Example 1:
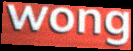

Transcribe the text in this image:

wong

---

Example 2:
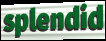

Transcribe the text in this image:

splendid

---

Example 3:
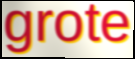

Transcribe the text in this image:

grote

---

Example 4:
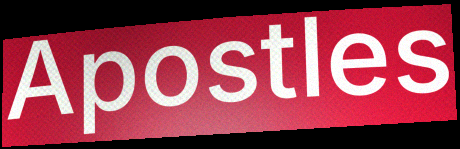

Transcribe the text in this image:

Apostles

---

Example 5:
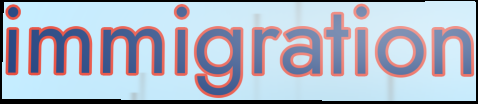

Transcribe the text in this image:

immigration